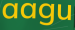
aagu